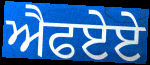
ਐਫਏਏ